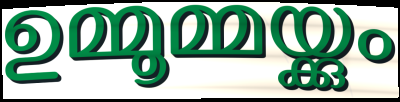
ഉമ്മൂമ്മയ്ക്കും